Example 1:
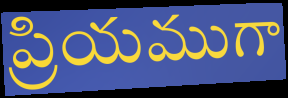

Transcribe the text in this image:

ప్రియముగా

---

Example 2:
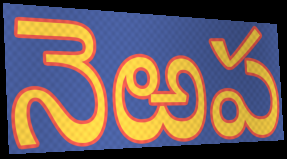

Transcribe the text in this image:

నెఱప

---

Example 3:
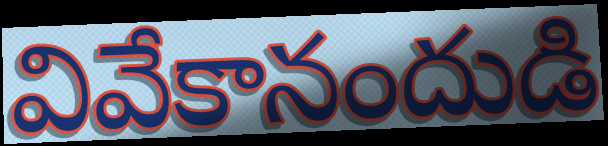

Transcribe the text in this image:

వివేకానందుడి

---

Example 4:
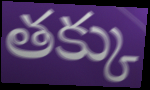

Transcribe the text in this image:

తక్కు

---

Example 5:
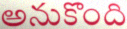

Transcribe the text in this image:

అనుకొంది